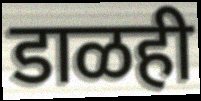
डाळही